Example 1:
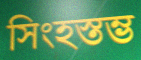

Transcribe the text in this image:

সিংহস্তম্ভ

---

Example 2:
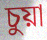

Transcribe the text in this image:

চুয়া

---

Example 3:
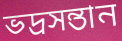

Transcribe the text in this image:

ভদ্রসন্তান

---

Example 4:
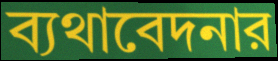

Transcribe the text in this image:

ব্যথাবেদনার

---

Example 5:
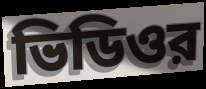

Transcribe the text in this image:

ভিডিওর